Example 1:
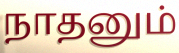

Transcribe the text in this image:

நாதனும்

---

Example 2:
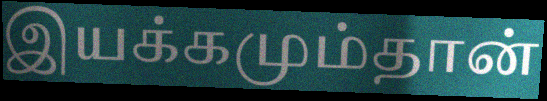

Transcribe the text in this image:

இயக்கமும்தான்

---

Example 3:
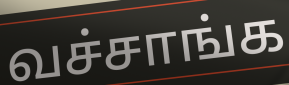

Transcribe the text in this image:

வச்சாங்க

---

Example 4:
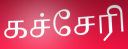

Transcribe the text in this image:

கச்சேரி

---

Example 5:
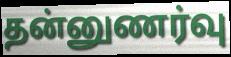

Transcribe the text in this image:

தன்னுணர்வு